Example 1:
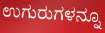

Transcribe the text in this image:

ಉಗುರುಗಳನ್ನೂ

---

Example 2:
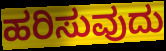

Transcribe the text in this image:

ಹರಿಸುವುದು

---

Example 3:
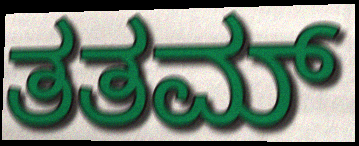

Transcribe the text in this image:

ತತಮ್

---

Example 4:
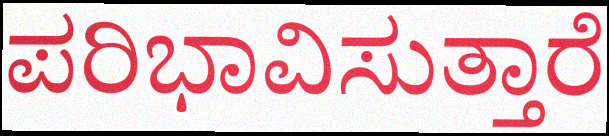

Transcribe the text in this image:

ಪರಿಭಾವಿಸುತ್ತಾರೆ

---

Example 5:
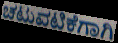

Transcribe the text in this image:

ಚಟುವಟಿಕೆಗಾಗಿ